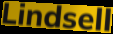
Lindsell